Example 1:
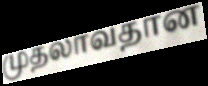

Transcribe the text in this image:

முதலாவதான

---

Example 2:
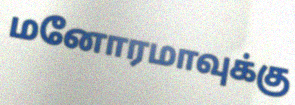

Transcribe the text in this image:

மனோரமாவுக்கு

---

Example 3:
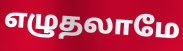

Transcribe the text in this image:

எழுதலாமே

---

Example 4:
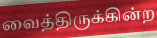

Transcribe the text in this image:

வைத்திருக்கின்ற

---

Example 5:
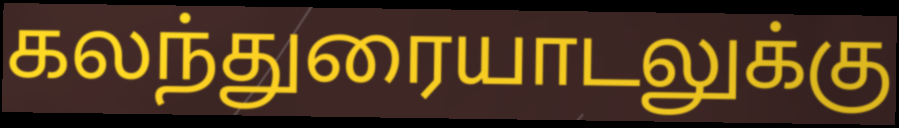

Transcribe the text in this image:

கலந்துரையாடலுக்கு